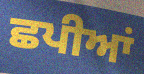
ਛਪੀਆਂ